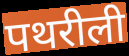
पथरीली